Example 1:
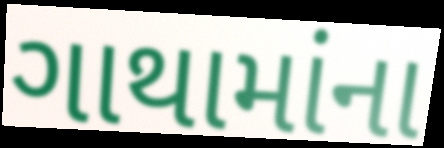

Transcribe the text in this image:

ગાથામાંના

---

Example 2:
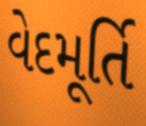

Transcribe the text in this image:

વેદમૂર્તિ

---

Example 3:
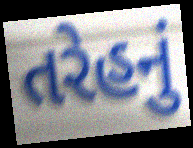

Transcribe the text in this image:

તરેહનું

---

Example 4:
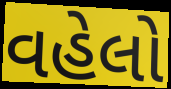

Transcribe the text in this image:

વહેલો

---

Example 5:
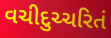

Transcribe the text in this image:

વચીદુચ્ચરિતં